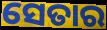
ସେତାର